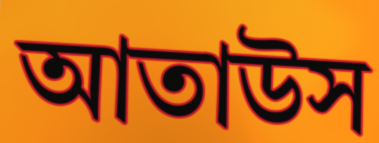
আতাউস